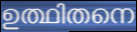
ഉത്ഥിതനെ